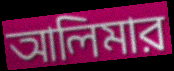
আলিমার